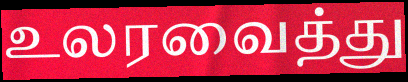
உலரவைத்து